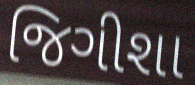
જિગીશા